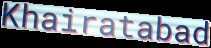
Khairatabad